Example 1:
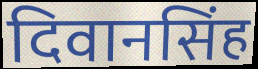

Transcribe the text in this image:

दिवानसिंह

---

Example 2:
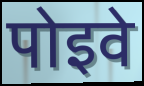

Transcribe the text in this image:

पोइवे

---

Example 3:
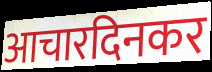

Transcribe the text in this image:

आचारदिनकर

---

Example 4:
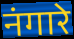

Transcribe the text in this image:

नंगारे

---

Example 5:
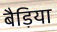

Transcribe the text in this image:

बैड़िया